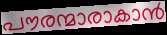
പൗരന്മാരാകാൻ